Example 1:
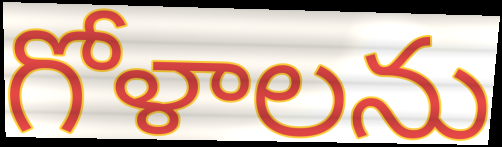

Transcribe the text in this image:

గోళాలను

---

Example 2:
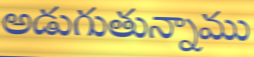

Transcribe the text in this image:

అడుగుతున్నాము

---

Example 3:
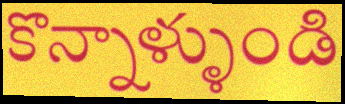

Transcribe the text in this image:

కొన్నాళ్ళుండి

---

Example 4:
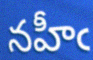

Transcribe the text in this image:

నహీఁ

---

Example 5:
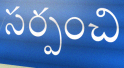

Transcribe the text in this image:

సర్పంచి